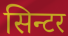
सिन्टर